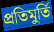
প্রতিমুর্তি